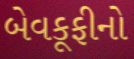
બેવકૂફીનો